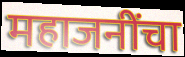
महाजनींचा